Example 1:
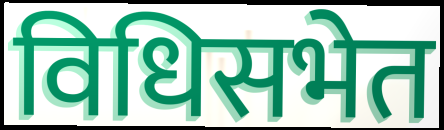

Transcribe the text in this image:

विधिसभेत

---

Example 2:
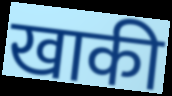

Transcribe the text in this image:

खाकी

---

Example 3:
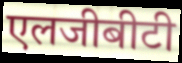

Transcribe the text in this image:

एलजीबीटी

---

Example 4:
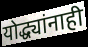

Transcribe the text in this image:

योद्ध्यांनाही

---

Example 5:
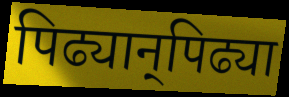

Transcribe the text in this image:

पिढ्यान्‌पिढ्या